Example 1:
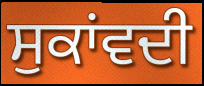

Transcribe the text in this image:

ਸੁਕਾਂਵਦੀ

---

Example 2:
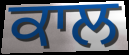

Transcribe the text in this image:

ਕਾਲ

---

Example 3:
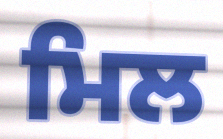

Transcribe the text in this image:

ਮਿਲ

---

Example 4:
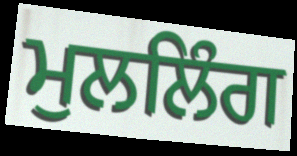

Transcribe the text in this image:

ਮੁਲਲਿੰਗ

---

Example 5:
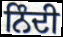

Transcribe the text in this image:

ਨਿੰਦੀ